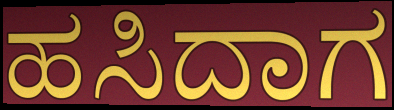
ಹಸಿದಾಗ